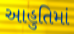
આહુતિમાં